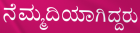
ನೆಮ್ಮದಿಯಾಗಿದ್ದರು